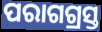
ପରାଗଗ୍ରସ୍ତ